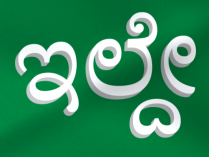
ಇಲ್ದೇ